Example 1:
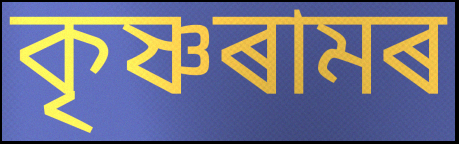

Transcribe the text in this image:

কৃষ্ণৰামৰ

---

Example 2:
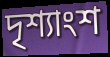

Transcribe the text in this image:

দৃশ্যাংশ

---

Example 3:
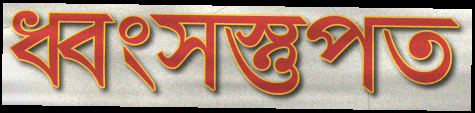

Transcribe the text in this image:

ধ্বংসস্তুপত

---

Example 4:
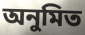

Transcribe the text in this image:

অনুমিত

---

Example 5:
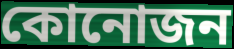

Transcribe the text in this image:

কোনোজন